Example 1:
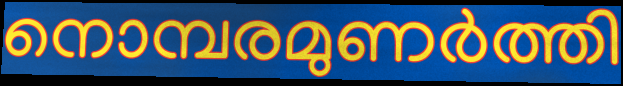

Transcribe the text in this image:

നൊമ്പരമുണർത്തി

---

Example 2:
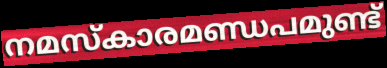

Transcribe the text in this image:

നമസ്കാരമണ്ഡപമുണ്ട്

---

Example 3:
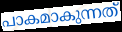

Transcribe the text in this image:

പാകമാകുന്നത്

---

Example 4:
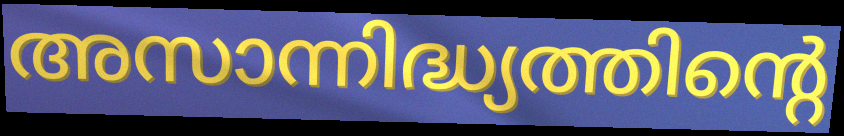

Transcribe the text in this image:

അസാന്നിദ്ധ്യത്തിന്റെ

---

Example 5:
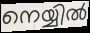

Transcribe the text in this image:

നെയ്യിൽ